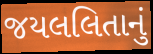
જયલલિતાનું